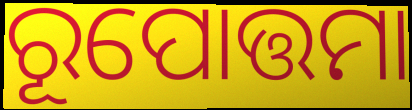
ରୂପୋତ୍ତମା